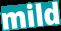
mild